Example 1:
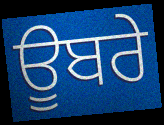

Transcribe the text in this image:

ਊਬਰੇ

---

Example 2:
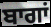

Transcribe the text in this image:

ਬਾਗਾਂ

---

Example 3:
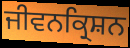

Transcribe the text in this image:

ਜੀਵਨਕ੍ਰਿਸ਼ਨ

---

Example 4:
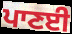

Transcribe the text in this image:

ਪਾਣਈ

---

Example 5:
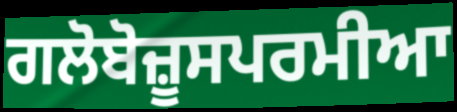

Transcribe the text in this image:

ਗਲੋਬੋਜ਼ੂਸਪਰਮੀਆ